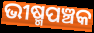
ଭୀଷ୍ମପଞ୍ଚକ